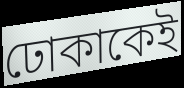
ঢোকাকেই